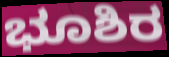
ಭೂಶಿರ